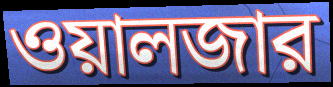
ওয়ালজার